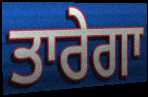
ਤਾਰੇਗਾ